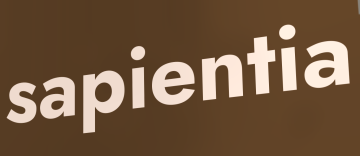
sapientia